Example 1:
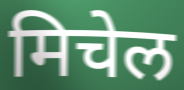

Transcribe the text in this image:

मिचेल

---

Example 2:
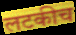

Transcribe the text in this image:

लटकीच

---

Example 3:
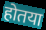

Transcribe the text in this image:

होतया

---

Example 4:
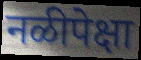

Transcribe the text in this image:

नळीपेक्षा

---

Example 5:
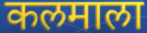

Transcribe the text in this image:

कलमाला